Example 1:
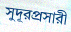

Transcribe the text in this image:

সুদূরপ্রসারী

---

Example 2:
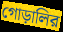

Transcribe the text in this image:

গোড়ালির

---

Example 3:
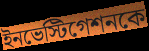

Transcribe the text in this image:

ইনভেস্টিগেশনকে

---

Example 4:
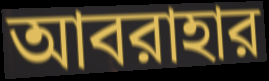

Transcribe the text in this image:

আবরাহার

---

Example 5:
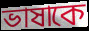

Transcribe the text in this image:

ভাষাকে